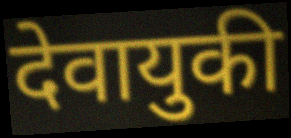
देवायुकी